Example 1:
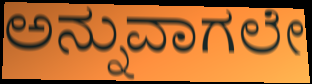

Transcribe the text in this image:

ಅನ್ನುವಾಗಲೇ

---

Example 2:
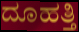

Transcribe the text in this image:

ದೂಹತ್ತಿ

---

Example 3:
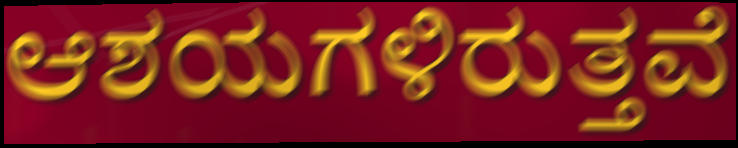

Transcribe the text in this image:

ಆಶಯಗಳಿರುತ್ತವೆ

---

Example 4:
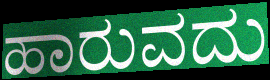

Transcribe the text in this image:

ಹಾರುವದು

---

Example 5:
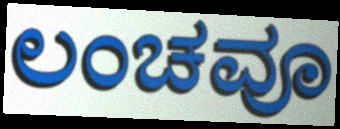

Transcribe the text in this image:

ಲಂಚವೂ